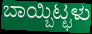
ಬಾಯ್ಬಿಟ್ಟಳು